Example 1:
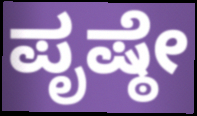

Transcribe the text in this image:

ಪೃಷ್ಠೇ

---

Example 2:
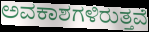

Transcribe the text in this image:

ಅವಕಾಶಗಳಿರುತ್ತವೆ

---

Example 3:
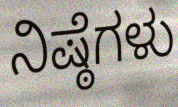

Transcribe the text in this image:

ನಿಷ್ಠೆಗಳು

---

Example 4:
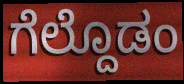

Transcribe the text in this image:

ಗೆಲ್ದೊಡಂ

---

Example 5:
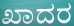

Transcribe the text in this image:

ಖಾದರ